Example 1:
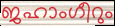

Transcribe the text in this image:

ജഹാംഗീറും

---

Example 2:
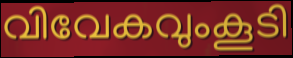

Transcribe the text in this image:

വിവേകവുംകൂടി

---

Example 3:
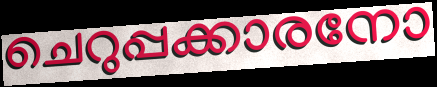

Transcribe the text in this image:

ചെറുപ്പക്കാരനോ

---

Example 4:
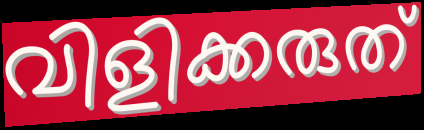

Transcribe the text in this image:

വിളിക്കരുത്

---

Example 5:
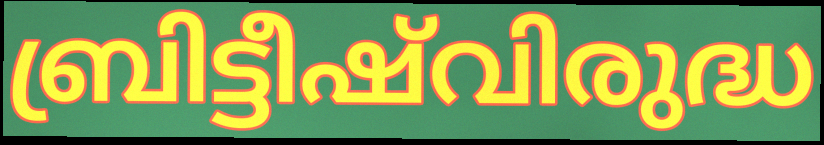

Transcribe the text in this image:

ബ്രിട്ടീഷ്‌വിരുദ്ധ